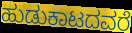
ಹುಡುಕಾಟದವರೆ